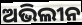
ଅଭିଲୀନ